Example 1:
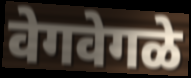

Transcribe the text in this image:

वेगवेगळे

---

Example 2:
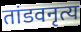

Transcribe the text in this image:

तांडवनृत्य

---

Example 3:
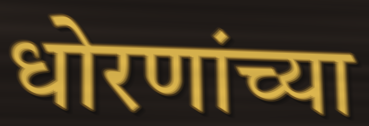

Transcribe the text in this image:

धोरणांच्या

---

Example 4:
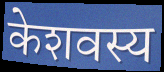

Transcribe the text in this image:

केशवस्य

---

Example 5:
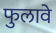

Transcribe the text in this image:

फुलावे